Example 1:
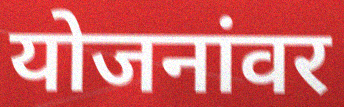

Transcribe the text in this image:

योजनांवर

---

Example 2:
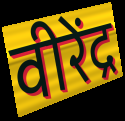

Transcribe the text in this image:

वीरेंद्र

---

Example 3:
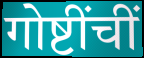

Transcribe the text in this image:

गोष्टींचीं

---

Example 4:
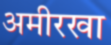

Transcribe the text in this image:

अमीरखा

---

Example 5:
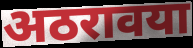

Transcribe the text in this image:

अठरावया